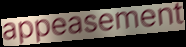
appeasement